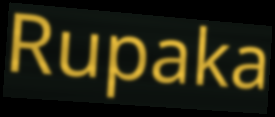
Rupaka